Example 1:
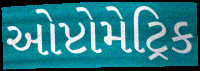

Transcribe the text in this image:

ઓપ્ટોમેટ્રિક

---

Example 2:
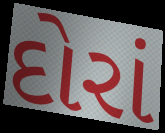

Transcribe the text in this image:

દોરાં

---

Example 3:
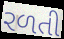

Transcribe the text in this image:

રળતી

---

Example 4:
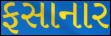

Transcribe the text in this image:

ફસાનાર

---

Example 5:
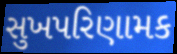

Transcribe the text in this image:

સુખપરિણામક